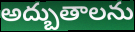
అద్బుతాలను